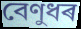
বেণুধৰ